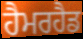
ਹੈਮਰਹੈਡ